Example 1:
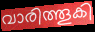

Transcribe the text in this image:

വാരിത്തൂകി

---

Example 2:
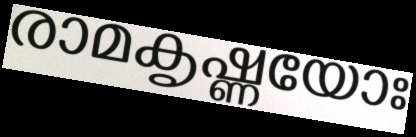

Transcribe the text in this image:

രാമകൃഷ്ണയോഃ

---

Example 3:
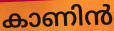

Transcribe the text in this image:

കാണിൻ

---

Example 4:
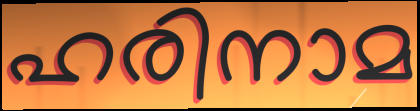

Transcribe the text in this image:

ഹരിനാമ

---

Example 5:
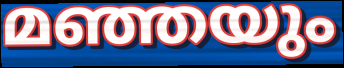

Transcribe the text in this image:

മഞ്ഞയും